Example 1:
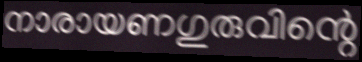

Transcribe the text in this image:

നാരായണഗുരുവിന്റെ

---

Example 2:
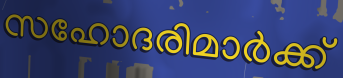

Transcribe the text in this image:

സഹോദരിമാർക്ക്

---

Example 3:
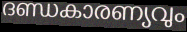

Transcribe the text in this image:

ദണ്ഡകാരണ്യവും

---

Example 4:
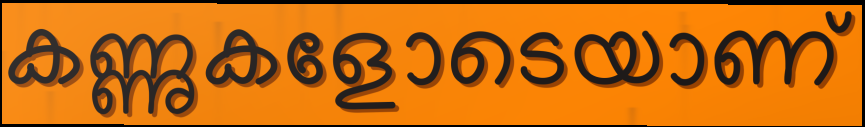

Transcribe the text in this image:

കണ്ണുകളോടെയാണ്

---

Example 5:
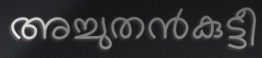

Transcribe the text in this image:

അച്ചുതൻകുട്ടീ